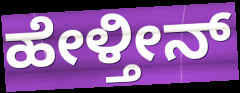
ಹೇಳ್ತೀನ್